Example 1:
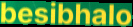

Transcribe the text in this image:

besibhalo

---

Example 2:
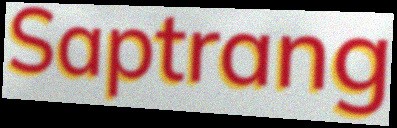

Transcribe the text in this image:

Saptrang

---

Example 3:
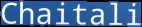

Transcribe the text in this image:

Chaitali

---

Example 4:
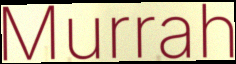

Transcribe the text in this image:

Murrah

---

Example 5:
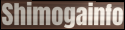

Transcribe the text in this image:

Shimogainfo